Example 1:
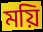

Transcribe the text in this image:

ময়ি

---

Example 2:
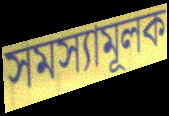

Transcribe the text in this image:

সমস্যামূলক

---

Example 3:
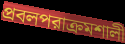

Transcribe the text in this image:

প্রবলপরাক্রমশালী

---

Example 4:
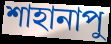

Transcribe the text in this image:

শাহানাপু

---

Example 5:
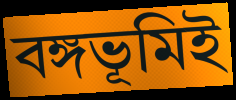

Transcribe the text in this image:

বঙ্গভূমিই